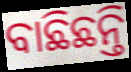
ବାଛିଛନ୍ତି